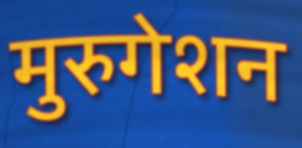
मुरुगेशन